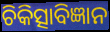
ଚିକିତ୍ସାବିଜ୍ଞାନ